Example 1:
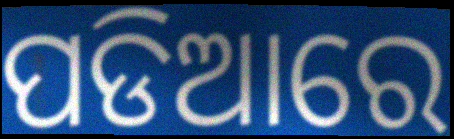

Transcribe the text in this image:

ପଡିଆରେ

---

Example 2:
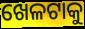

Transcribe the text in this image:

ଖେଳଟାକୁ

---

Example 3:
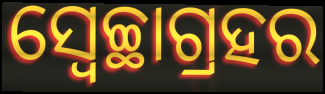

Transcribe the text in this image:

ସ୍ବେଚ୍ଛାଗ୍ରହର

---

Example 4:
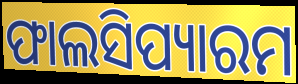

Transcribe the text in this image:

ଫାଲସିପ୍ୟାରମ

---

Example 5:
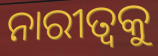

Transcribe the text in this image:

ନାରୀତ୍ୱକୁ